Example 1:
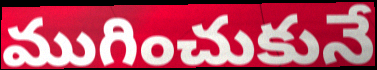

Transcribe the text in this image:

ముగించుకునే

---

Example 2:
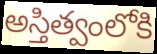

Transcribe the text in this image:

అస్తిత్వంలోకి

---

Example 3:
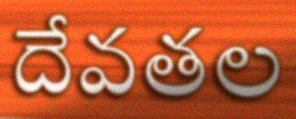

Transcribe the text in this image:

దేవతల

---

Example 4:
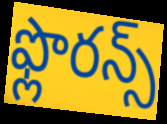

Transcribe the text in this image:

ఫ్లొరన్స్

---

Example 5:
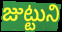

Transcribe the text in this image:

జుట్టుని